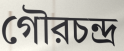
গৌরচন্দ্র